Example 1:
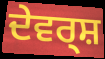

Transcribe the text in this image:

ਦੇਵਰ੍ਸ਼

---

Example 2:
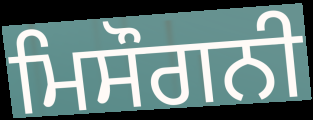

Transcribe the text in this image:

ਮਿਸੌਗਨੀ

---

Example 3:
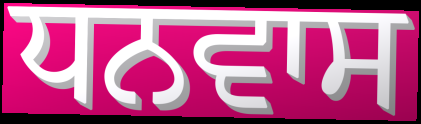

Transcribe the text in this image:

ਧਨਵਾਸ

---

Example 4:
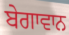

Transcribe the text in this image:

ਬੇਗਾਵਾਨ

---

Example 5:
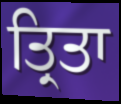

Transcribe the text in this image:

ਤ੍ਰਿਤਾ